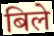
बिले